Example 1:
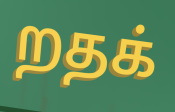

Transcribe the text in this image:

றதக்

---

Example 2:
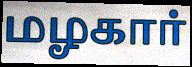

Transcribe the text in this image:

மழகார்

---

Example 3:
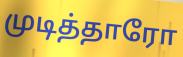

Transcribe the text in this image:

முடித்தாரோ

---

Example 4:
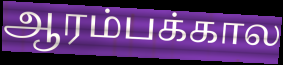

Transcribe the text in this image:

ஆரம்பக்கால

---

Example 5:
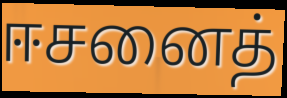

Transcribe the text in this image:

ஈசனைத்